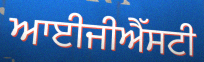
ਆਈਜੀਐੱਸਟੀ